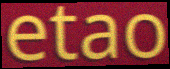
etao